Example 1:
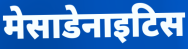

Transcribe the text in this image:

मेसाडेनाइटिस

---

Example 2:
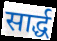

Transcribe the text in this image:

सार्द्ध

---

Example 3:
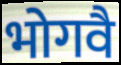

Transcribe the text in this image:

भोगवै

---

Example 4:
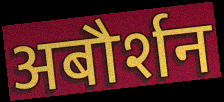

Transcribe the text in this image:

अबौर्शन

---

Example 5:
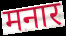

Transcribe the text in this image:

मनार